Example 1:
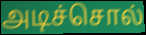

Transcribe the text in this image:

அடிச்சொல்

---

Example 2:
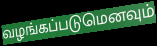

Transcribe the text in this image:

வழங்கப்படுமெனவும்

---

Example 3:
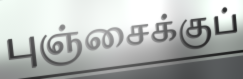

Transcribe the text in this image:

புஞ்சைக்குப்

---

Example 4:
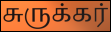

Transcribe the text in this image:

சுருக்கர்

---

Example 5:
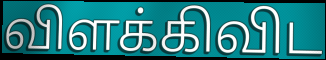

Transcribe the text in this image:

விளக்கிவிட